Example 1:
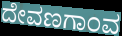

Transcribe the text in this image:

ದೇವಣಗಾಂವ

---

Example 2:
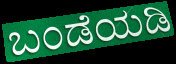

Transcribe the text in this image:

ಬಂಡೆಯಡಿ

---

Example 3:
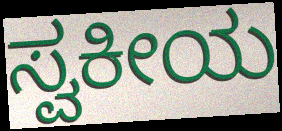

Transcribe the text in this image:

ಸ್ವಕೀಯ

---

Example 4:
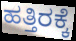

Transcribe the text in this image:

ಹತ್ತಿರಕ್ಕೆ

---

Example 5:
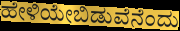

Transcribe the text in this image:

ಹೇಳಿಯೇಬಿಡುವೆನೆಂದು